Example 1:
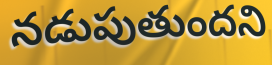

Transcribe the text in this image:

నడుపుతుందని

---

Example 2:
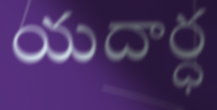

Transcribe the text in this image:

యదార్ధ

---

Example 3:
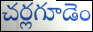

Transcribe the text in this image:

చర్లగూడెం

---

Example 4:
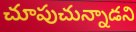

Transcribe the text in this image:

చూపుచున్నాడని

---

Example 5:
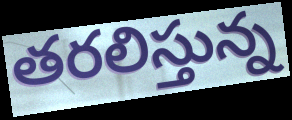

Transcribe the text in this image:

తరలిస్తున్న